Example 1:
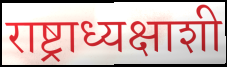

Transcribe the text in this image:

राष्ट्राध्यक्षाशी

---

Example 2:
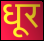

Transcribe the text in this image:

धूर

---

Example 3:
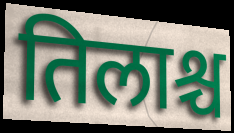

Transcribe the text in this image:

तिलाश्च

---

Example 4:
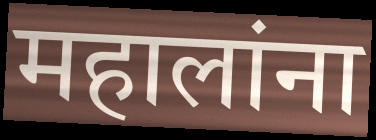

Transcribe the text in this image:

महालांना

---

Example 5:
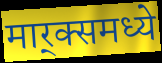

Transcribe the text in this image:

मार्क्समध्ये